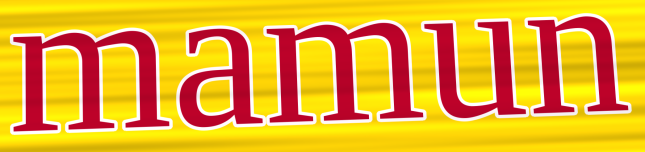
mamun